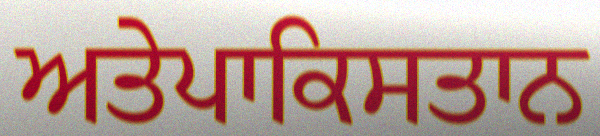
ਅਤੇਪਾਕਿਸਤਾਨ